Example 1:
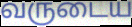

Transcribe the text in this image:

வருடைய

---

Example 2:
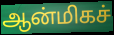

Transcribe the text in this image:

ஆன்மிகச்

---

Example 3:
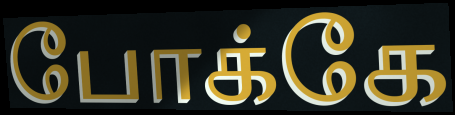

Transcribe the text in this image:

போக்கே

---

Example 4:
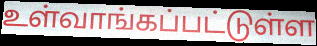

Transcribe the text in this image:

உள்வாங்கப்பட்டுள்ள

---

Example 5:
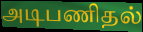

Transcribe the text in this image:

அடிபணிதல்